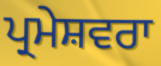
ਪ੍ਰਮੇਸ਼ਵਰਾ